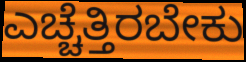
ಎಚ್ಚೆತ್ತಿರಬೇಕು